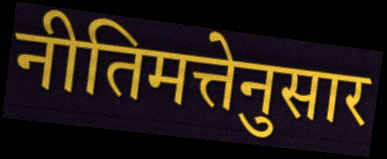
नीतिमत्तेनुसार